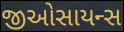
જીઓસાયન્સ